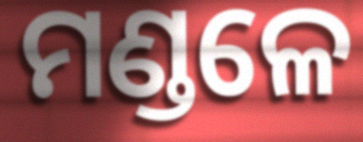
ମଣ୍ଡଳେ